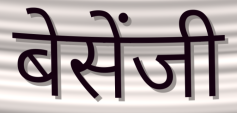
बेसेंजी